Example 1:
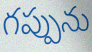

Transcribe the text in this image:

గప్పును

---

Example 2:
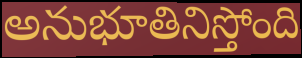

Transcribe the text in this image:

అనుభూతినిస్తోంది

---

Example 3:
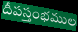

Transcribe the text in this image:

దీపస్తంభముల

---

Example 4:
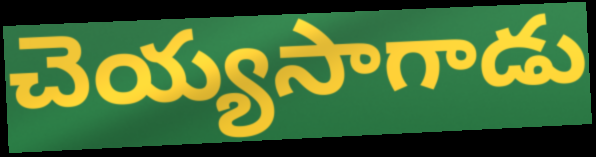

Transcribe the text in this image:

చెయ్యసాగాడు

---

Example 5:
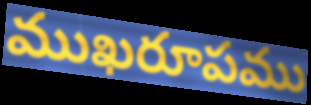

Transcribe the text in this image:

ముఖరూపము